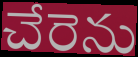
చేరెను